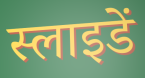
स्लाइडें